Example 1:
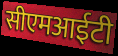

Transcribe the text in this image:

सीएमआईटी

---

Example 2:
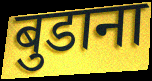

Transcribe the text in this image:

बुडाना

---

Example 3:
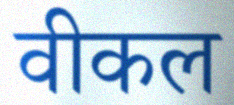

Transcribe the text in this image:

वीकल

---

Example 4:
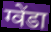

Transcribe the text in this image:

ग्वेंडा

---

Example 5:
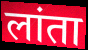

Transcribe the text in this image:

लांता